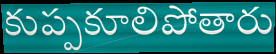
కుప్పకూలిపోతారు